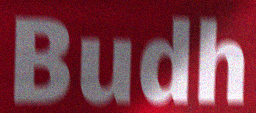
Budh